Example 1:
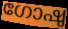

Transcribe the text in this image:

ഗോഷു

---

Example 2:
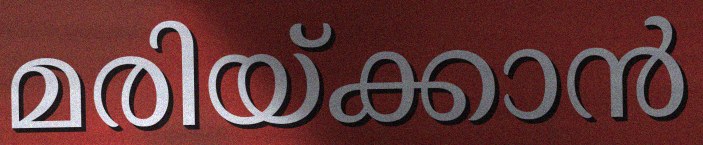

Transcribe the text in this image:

മരിയ്ക്കാൻ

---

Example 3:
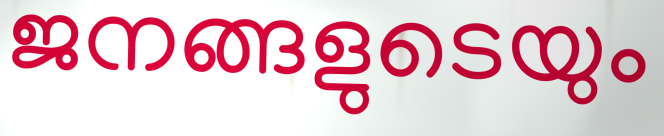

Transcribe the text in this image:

ജനങ്ങളുടെയും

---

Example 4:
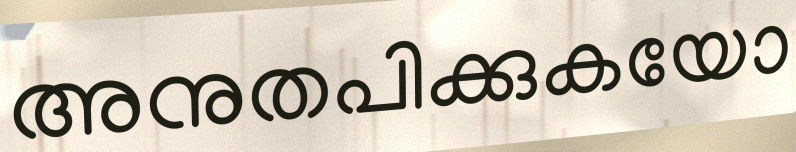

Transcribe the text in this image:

അനുതപിക്കുകയോ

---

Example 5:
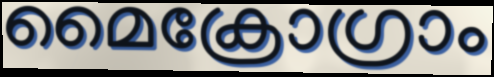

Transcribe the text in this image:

മൈക്രോഗ്രാം